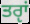
ਤਰੵਾਂ